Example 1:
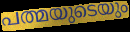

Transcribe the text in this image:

പത്മയുടെയും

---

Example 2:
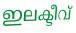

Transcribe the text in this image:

ഇലക്ടീവ്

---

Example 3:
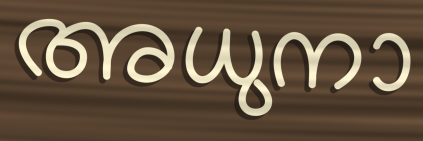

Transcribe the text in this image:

അധുനാ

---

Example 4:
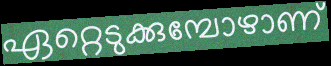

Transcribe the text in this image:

ഏറ്റെടുക്കുമ്പോഴാണ്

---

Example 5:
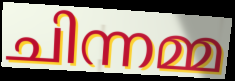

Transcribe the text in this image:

ചിന്നമ്മ